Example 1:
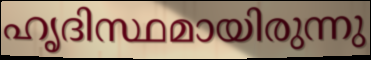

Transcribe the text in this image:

ഹൃദിസ്ഥമായിരുന്നു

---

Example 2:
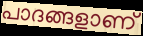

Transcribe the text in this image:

പാദങ്ങളാണ്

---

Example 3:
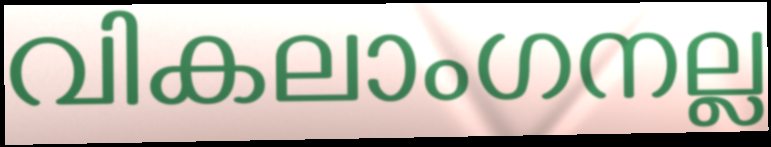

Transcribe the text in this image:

വികലാംഗനല്ല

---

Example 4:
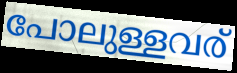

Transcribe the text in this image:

പോലുള്ളവര്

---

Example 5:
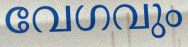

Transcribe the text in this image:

വേഗവും